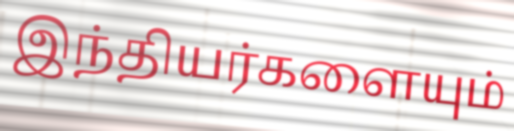
இந்தியர்களையும்